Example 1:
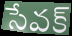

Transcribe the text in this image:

సేవక్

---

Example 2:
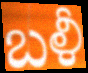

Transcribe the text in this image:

బళీ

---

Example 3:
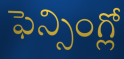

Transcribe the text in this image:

ఫెన్సింగ్లో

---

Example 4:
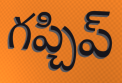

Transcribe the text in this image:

గప్చిప్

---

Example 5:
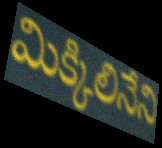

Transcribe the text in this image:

మిక్కిలినేని